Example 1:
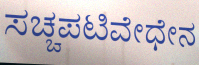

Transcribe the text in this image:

ಸಚ್ಚಪಟಿವೇಧೇನ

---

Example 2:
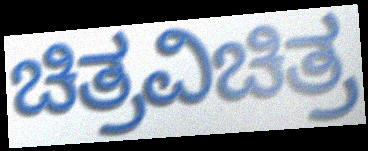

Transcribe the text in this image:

ಚಿತ್ರವಿಚಿತ್ರ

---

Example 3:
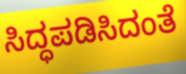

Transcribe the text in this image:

ಸಿದ್ಧಪಡಿಸಿದಂತೆ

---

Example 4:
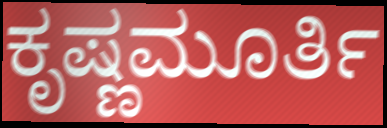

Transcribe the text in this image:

ಕೃಷ್ಣಮೂರ್ತಿ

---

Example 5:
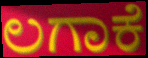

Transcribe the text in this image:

ಲಗಾಕೆ